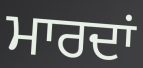
ਮਾਰਦਾਂ